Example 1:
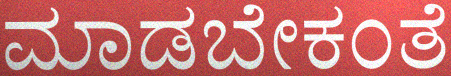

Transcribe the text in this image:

ಮಾಡಬೇಕಂತೆ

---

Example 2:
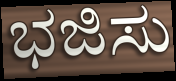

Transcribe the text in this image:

ಭಜಿಸು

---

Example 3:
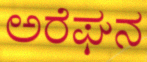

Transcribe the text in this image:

ಅರೆಘನ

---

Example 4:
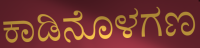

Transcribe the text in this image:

ಕಾಡಿನೊಳಗಣ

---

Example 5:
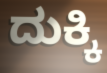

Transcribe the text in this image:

ದುಕ್ಕಿ